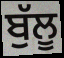
ਬੁੱਲੂ